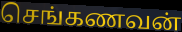
செங்கணவன்